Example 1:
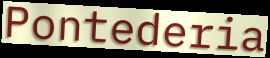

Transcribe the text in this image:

Pontederia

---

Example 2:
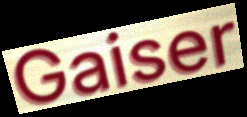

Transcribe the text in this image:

Gaiser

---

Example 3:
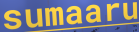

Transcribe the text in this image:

sumaaru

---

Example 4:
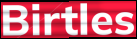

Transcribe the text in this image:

Birtles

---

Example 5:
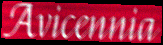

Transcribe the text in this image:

Avicennia